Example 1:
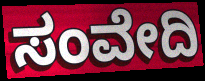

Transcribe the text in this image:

ಸಂವೇದಿ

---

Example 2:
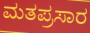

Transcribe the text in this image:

ಮತಪ್ರಸಾರ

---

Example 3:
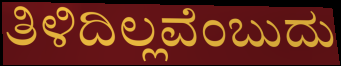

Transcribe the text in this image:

ತಿಳಿದಿಲ್ಲವೆಂಬುದು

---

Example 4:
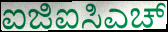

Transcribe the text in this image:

ಐಜಿಐಸಿಎಚ್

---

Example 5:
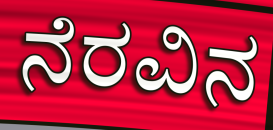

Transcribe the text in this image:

ನೆರವಿನ